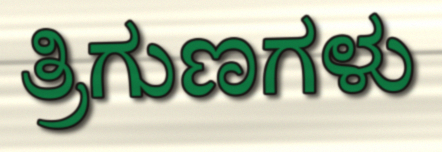
ತ್ರಿಗುಣಗಳು